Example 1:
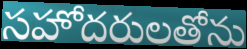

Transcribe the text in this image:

సహోదరులతోను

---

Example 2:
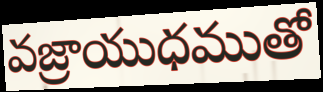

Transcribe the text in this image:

వజ్రాయుధముతో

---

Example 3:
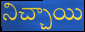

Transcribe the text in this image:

నిచ్చాయి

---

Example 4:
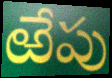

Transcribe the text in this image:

ఱేపు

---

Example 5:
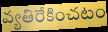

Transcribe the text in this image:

వ్యతిరేకించటం